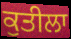
ਕੁਤੀਲਾ